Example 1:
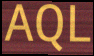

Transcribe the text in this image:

AQL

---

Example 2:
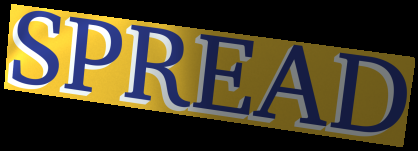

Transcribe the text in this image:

SPREAD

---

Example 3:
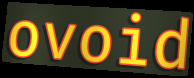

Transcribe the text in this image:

ovoid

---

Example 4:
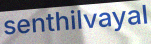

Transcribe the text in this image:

senthilvayal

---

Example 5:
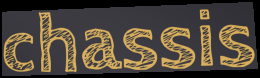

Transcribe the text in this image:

chassis